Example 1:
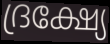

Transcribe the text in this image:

ദ്രക്ഷ്യേ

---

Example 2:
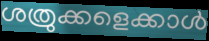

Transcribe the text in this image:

ശത്രുക്കളെക്കാൾ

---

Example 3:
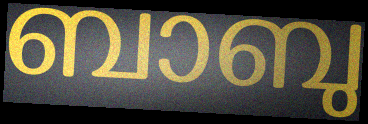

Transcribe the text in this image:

ബാബു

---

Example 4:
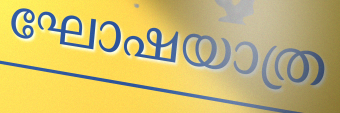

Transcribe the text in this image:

ഘോഷയാത്ര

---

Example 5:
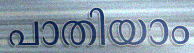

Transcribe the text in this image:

പാതിയാം